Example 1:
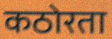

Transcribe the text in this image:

कठोरता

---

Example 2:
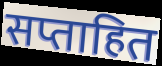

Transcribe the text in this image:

सप्ताहित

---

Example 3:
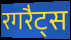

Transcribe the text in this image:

रगरैट्स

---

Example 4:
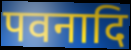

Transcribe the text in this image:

पवनादि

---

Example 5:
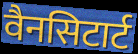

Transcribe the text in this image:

वैनसिटार्ट